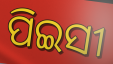
ପିଇସୀ